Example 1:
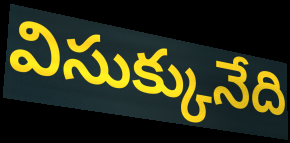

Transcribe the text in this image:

విసుక్కునేది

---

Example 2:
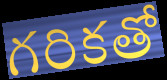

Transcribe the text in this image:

గరికతో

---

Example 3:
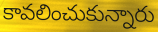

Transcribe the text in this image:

కావలించుకున్నారు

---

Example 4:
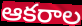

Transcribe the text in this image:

ఆకరాల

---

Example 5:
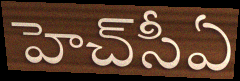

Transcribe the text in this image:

హెచ్‌సీఏ